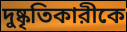
দুষ্কৃতিকারীকে